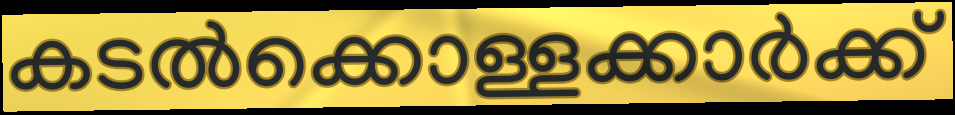
കടൽക്കൊള്ളക്കാർക്ക്